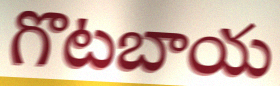
గొటబాయ